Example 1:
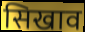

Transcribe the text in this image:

सिखाव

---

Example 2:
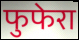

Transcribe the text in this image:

फुफेरा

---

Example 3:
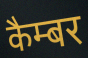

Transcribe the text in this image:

कैम्बर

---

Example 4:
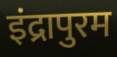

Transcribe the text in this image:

इंद्रापुरम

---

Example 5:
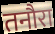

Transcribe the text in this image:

तनौरा